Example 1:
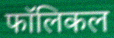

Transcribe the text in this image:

फॉलिकल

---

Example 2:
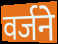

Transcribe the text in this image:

वर्जने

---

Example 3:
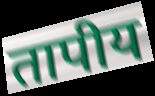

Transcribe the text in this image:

तापीय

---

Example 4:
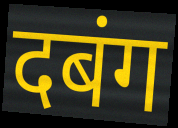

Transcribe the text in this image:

दबंग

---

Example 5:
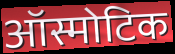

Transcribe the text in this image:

ऑस्मोटिक